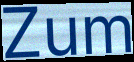
Zum